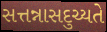
સત્તન્નાસદુચ્યતે